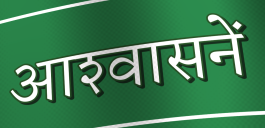
आश्वासनें